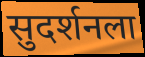
सुदर्शनला